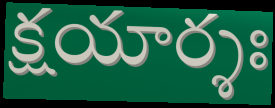
క్షయార్శః